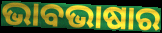
ଭାବଭାଷାର